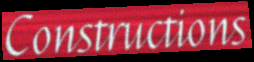
Constructions